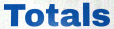
Totals